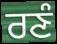
ਰਣੰ